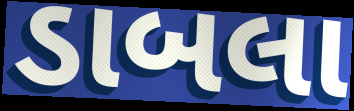
ડાબલા